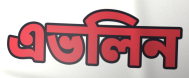
এভলিন